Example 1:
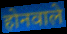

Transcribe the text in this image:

होनवाले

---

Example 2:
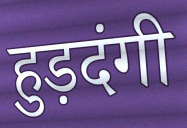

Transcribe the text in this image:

हुड़दंगी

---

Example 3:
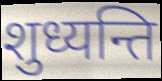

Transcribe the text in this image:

शुध्यन्ति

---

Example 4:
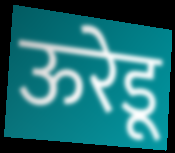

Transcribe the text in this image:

ऊरेडू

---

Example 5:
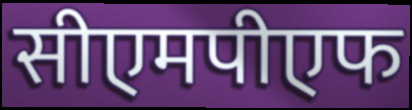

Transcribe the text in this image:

सीएमपीएफ